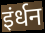
इंर्धन